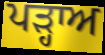
ਪੜ੍ਹਾਅ